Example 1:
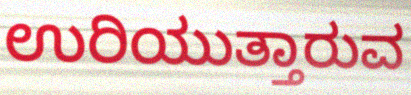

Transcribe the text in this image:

ಉರಿಯುತ್ತಾರುವ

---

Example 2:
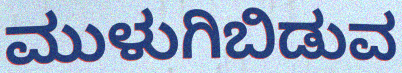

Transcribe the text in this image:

ಮುಳುಗಿಬಿಡುವ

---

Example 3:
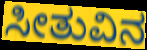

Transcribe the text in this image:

ಸೀತುವಿನ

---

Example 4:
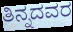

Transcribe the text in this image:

ತಿನ್ನದವರ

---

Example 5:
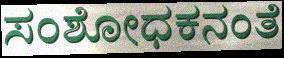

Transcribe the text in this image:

ಸಂಶೋಧಕನಂತೆ